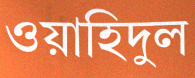
ওয়াহিদুল